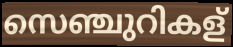
സെഞ്ചുറികള്